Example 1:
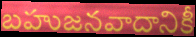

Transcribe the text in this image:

బహుజనవాదానికీ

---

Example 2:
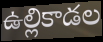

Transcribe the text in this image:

ఉల్లికాడల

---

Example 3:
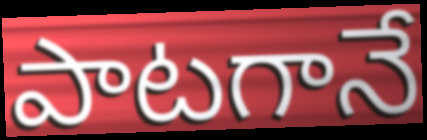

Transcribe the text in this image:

పాటగానే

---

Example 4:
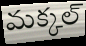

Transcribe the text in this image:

మక్కల్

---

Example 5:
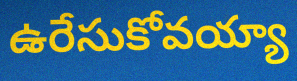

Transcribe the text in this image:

ఉరేసుకోవయ్యా